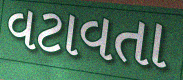
વટાવતા